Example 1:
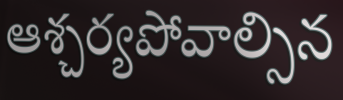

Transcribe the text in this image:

ఆశ్చర్యపోవాల్సిన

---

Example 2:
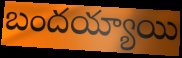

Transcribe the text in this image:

బందయ్యాయి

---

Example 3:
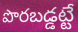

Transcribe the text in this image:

పొరబడ్డట్టే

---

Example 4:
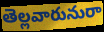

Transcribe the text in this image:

తెల్లవారునురా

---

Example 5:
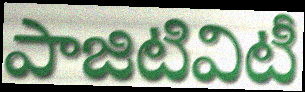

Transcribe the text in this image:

పాజిటివిటీ